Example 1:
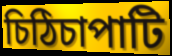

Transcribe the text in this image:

চিঠিচাপাটি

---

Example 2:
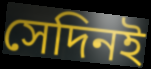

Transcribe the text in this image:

সেদিনই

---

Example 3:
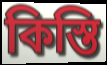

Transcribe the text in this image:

কিস্তি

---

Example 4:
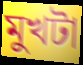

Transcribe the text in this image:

মুখটা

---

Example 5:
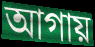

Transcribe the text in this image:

আগায়